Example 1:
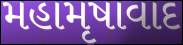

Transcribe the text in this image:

મહામૃષાવાદ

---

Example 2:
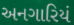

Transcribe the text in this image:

અનગારિયં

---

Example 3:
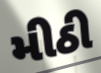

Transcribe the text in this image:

મીઠી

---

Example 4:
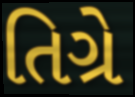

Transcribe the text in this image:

તિગ્રે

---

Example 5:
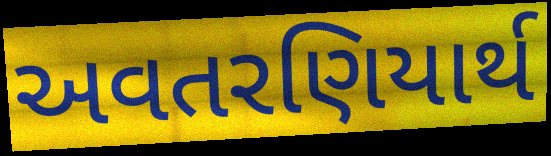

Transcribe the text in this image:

અવતરણિયાર્થ